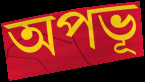
অপভূ